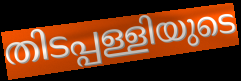
തിടപ്പള്ളിയുടെ